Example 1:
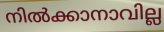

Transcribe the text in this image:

നിൽക്കാനാവില്ല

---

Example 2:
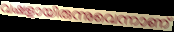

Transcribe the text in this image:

വഷളായിരുന്നുവെന്നാണ്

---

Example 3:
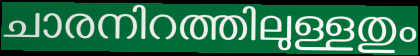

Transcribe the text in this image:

ചാരനിറത്തിലുള്ളതും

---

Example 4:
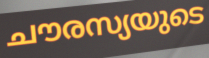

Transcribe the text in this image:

ചൗരസ്യയുടെ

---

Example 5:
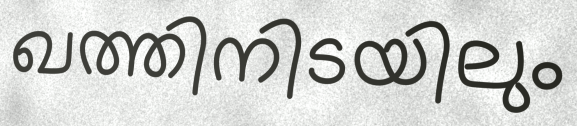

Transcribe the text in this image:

ഖത്തിനിടയിലും